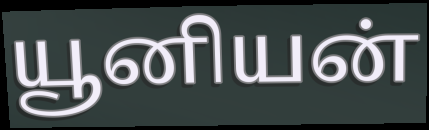
யூனியன்